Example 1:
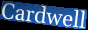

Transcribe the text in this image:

Cardwell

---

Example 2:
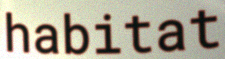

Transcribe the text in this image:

habitat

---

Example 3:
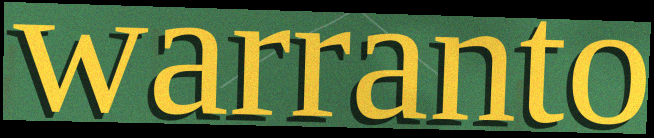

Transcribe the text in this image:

warranto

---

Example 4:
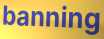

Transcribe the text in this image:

banning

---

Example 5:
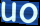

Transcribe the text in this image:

uo